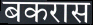
बकरास